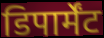
डिपार्मेंट